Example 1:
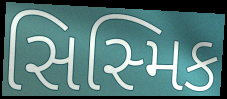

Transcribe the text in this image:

સિસ્મિક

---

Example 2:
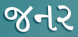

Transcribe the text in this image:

જનર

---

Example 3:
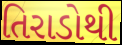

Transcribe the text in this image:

તિરાડોથી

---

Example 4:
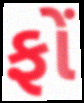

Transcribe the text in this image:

ફોં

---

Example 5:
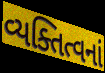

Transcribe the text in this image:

વ્યક્તિત્વનાં